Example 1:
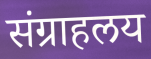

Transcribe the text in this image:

संग्राहलय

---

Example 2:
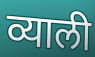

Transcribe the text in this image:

व्याली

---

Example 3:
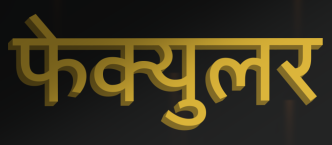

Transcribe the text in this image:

फेक्युलर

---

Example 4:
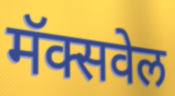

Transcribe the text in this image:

मॅक्सवेल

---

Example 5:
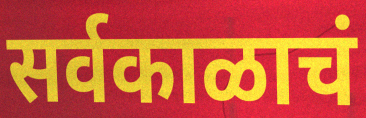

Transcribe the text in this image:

सर्वकाळाचं